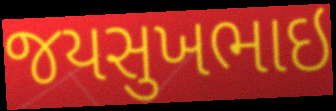
જયસુખભાઇ